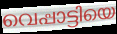
വെപ്പാട്ടിയെ